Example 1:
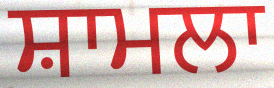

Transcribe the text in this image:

ਸ਼ਾਮਲਾ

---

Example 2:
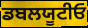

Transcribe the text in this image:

ਡਬਲਯੂਟੀਓ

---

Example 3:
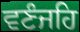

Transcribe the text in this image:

ਵਣੰਜਹਿ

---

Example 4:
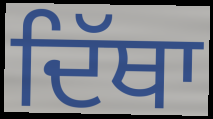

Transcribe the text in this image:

ਦਿੱਥਾ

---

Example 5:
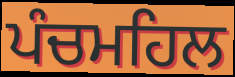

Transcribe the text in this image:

ਪੰਚਮਹਿਲ